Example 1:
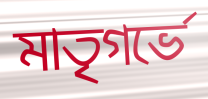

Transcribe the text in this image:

মাতৃগর্ভে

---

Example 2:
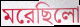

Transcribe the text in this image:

মরেছিলো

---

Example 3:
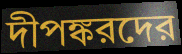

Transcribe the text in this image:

দীপঙ্করদের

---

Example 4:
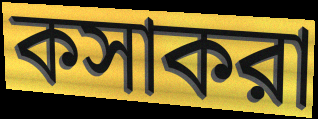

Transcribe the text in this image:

কসাকরা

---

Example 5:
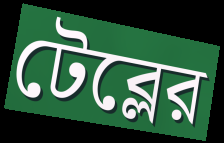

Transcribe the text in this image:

টেব্লের